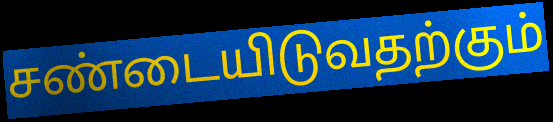
சண்டையிடுவதற்கும்